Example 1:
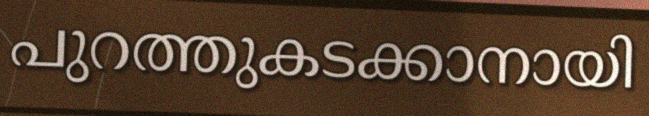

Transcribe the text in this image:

പുറത്തുകടക്കാനായി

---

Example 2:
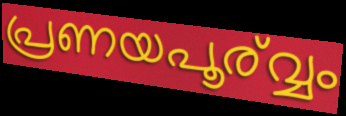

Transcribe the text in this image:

പ്രണയപൂര്വ്വം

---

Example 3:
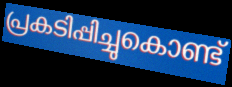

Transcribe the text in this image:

പ്രകടിപ്പിച്ചുകൊണ്ട്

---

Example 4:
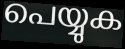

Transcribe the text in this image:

പെയ്യുക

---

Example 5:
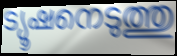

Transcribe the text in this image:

ട്യൂഷനെടുത്തു